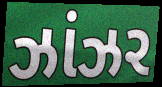
ઝાંઝર